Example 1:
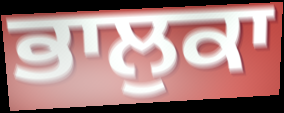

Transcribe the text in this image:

ਭਾਲੁਕਾ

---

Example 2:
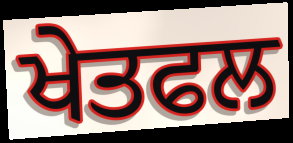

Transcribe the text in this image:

ਖੇਤਫਲ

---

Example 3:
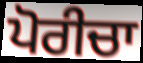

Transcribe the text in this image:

ਪੋਰੀਚਾ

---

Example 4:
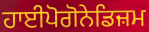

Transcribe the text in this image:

ਹਾਈਪੋਗੋਨੇਡਿਜ਼ਮ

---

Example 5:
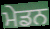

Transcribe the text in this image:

ਮੇਡਨ